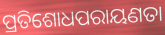
ପ୍ରତିଶୋଧପରାୟଣତା